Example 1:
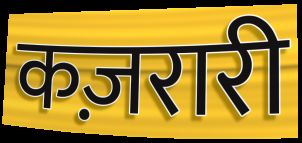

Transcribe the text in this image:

कज़रारी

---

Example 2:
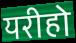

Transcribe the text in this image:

यरीहो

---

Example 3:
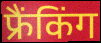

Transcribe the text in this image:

फ्रैंकिंग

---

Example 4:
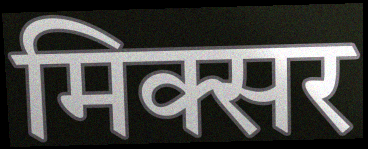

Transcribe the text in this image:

मिक्सर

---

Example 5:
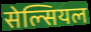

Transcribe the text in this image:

सेल्सियल